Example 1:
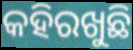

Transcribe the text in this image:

କହିରଖୁଛି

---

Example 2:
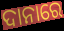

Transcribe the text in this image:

ଦାନାରେ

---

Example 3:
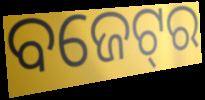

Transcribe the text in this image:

ବଜେଟ୍‌ର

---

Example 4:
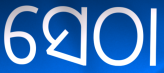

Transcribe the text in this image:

ସେଠା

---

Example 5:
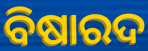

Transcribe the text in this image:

ବିଷାରଦ